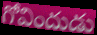
గోవిందుడు